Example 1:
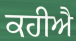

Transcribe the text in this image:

ਕਹੀਐ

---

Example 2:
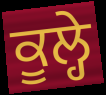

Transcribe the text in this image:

ਕੂਲ੍ਹੇ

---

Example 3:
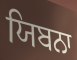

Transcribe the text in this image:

ਯਿਬਨਾ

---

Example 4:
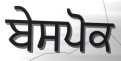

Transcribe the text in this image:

ਬੇਸਪੋਕ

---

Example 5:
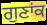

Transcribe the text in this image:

ਗੁਣਾਂਕ